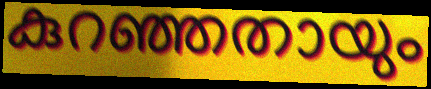
കുറഞ്ഞതായും